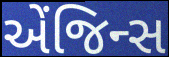
એંજિન્સ